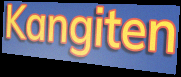
Kangiten